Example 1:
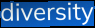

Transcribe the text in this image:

diversity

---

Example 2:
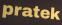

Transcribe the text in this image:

pratek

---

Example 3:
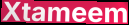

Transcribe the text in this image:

Xtameem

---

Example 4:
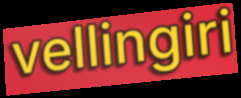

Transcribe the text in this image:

vellingiri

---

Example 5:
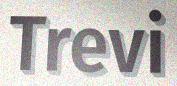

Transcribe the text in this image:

Trevi